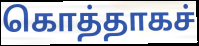
கொத்தாகச்